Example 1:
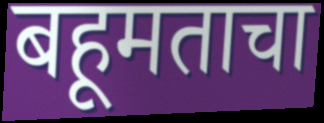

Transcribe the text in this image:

बहूमताचा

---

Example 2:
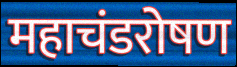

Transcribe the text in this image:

महाचंडरोषण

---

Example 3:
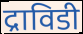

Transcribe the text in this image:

द्राविडी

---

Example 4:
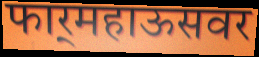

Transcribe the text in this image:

फार्महाऊसवर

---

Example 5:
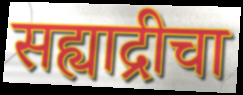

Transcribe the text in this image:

सह्याद्रीचा